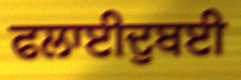
ਫਲਾਈਦੁਬਈ